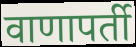
वाणापर्ती